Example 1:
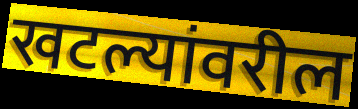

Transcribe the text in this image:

खटल्यांवरील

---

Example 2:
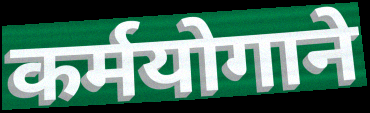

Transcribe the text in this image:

कर्मयोगाने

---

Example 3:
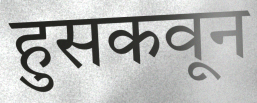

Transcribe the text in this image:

हुसकवून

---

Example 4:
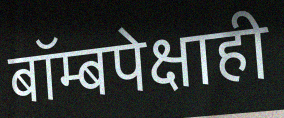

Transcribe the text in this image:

बॉम्बपेक्षाही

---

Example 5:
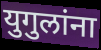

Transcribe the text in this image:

युगुलांना